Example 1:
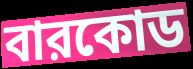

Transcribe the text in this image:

বারকোড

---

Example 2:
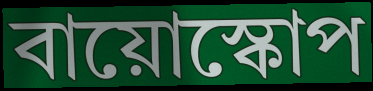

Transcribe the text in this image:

বায়োস্কোপ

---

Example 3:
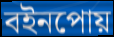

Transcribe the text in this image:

বইনপোয়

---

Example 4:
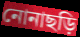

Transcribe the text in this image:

নোনাছড়ি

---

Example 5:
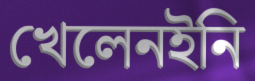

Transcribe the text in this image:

খেলেনইনি